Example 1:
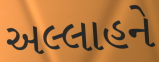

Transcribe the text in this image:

અલ્લાહને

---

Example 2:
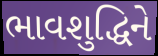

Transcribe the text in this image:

ભાવશુદ્ધિને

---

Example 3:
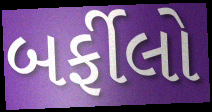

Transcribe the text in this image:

બર્ફીલો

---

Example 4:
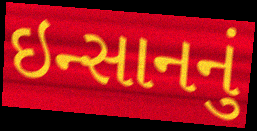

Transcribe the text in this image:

ઇન્સાનનું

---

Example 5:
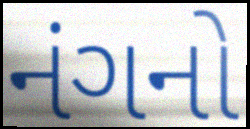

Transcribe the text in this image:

નંગનો